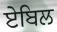
ਏਬਿਲ